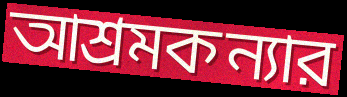
আশ্রমকন্যার